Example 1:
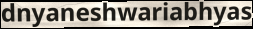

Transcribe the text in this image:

dnyaneshwariabhyas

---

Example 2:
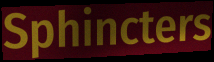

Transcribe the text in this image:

Sphincters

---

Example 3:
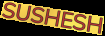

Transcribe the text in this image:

SUSHESH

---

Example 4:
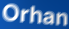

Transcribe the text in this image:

Orhan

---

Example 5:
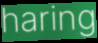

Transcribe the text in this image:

haring